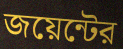
জয়েন্টের